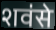
शव॑से